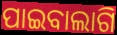
ପାଇବାଲାଗି